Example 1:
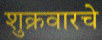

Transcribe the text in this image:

शुक्रवारचे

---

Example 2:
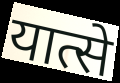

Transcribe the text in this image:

यात्से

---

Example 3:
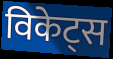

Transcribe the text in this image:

विकेट्स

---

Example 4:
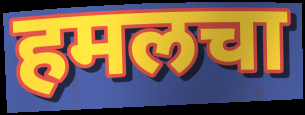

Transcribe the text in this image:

हमलचा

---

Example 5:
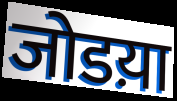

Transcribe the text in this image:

जोडय़ा